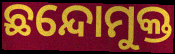
ଛନ୍ଦୋମୁକ୍ତ